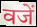
वजें